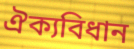
ঐক্যবিধান